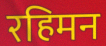
रहिमन